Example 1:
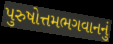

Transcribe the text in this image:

પુરુષોત્તમભગવાનનું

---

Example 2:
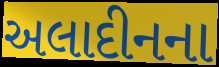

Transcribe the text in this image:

અલાદીનના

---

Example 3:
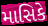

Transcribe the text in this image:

માસિકે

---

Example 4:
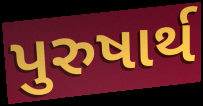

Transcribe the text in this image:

પુરુષાર્થ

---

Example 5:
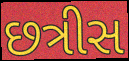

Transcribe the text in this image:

છત્રીસ